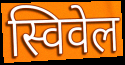
स्विवेल